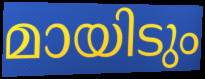
മായിടും